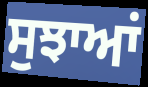
ਸੁਝਾਆਂ